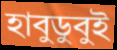
হাবুডুবুই